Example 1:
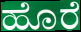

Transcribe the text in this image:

ಹೊರೆ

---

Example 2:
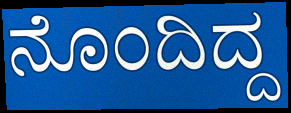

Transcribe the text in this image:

ನೊಂದಿದ್ದ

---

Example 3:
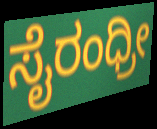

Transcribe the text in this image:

ಸೈರಂಧ್ರೀ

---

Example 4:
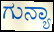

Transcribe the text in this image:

ಗುನ್ಯಾ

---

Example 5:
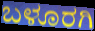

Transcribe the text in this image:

ಬಳೂರಗಿ